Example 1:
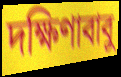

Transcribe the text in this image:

দক্ষিণাবাবু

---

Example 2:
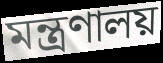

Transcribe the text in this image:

মন্ত্রণালয়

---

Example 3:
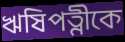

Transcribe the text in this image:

ঋষিপত্নীকে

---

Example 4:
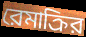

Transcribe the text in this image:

রেমাক্রির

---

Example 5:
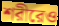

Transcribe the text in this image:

শরীরেও